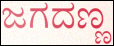
ಜಗದಣ್ಣ